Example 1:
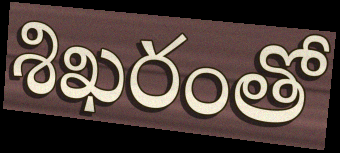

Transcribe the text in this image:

శిఖరంతో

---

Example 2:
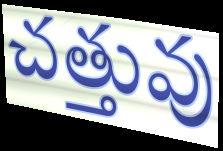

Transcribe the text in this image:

చత్తువు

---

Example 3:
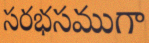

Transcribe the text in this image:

సరభసముగా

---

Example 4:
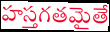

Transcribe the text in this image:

హస్తగతమైతే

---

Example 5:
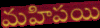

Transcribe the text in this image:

మహిపయి